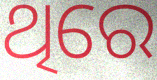
ଥିରେ